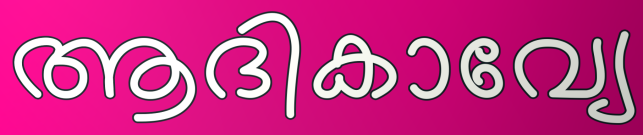
ആദികാവ്യേ